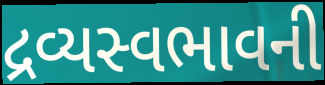
દ્રવ્યસ્વભાવની